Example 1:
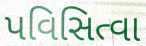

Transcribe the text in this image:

પવિસિત્વા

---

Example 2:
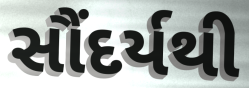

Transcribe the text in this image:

સૌંદર્યથી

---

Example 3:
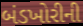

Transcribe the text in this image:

બંડખોરીની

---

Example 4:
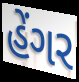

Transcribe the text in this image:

હેંગર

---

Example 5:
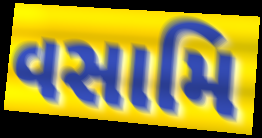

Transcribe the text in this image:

વસામિ